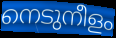
നെടുനീളം